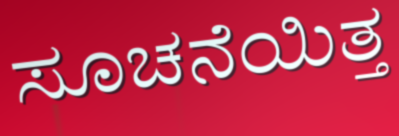
ಸೂಚನೆಯಿತ್ತ